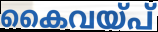
കൈവയ്പ്